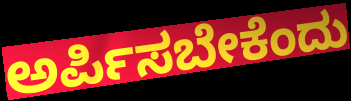
ಅರ್ಪಿಸಬೇಕೆಂದು